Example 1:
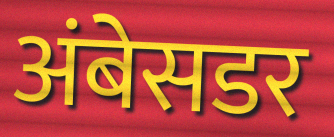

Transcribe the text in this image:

अंबेसडर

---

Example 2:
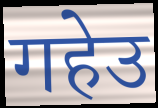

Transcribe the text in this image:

गहेउ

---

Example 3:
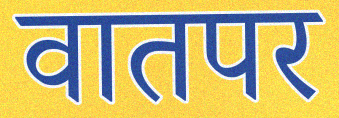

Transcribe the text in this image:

वातपर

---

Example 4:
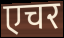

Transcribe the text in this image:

एचर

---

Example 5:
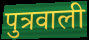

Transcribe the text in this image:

पुत्रवाली